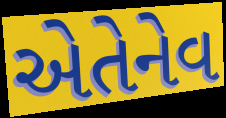
એતેનેવ